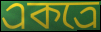
একত্রে